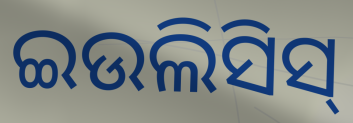
ଇଉଲିସିସ୍